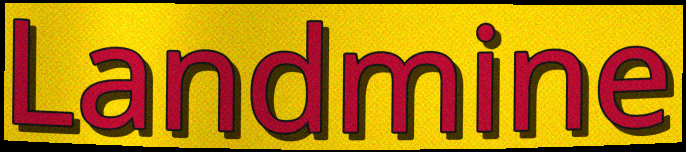
Landmine